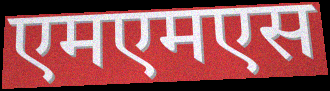
एमएमएस